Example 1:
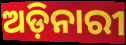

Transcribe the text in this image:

ଅଡ଼ିନାରୀ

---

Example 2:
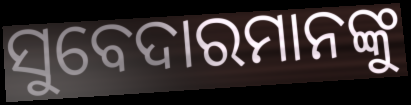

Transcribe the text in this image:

ସୁବେଦାରମାନଙ୍କୁ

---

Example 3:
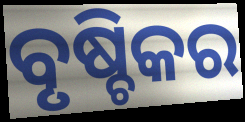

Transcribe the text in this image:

ବୃଷ୍ଚିକର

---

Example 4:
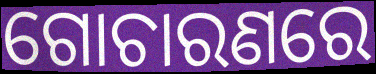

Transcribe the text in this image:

ଗୋଚାରଣରେ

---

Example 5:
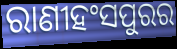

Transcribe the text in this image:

ରାଣୀହଂସପୁରର